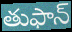
తుఫాన్